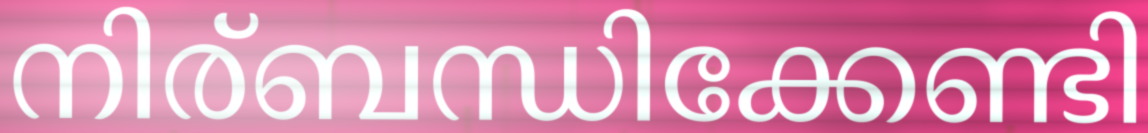
നിര്ബന്ധിക്കേണ്ടി